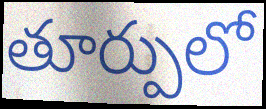
తూర్పులో